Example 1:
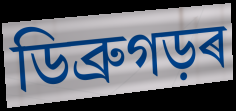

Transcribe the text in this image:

ডিব্ৰুগড়ৰ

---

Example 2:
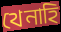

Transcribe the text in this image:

থেনাহি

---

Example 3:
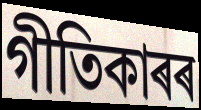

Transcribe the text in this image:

গীতিকাৰৰ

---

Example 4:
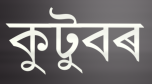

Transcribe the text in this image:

কুটুবৰ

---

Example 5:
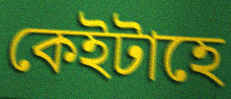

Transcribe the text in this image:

কেইটাহে